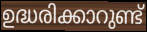
ഉദ്ധരിക്കാറുണ്ട്